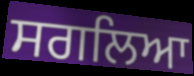
ਸਗਲਿਆ